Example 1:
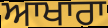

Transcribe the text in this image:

ਆਖਾਰਾ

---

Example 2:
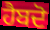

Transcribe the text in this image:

ਹੈਬਦੋ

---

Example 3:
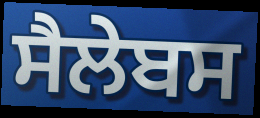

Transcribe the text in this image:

ਸੈਲੇਬਸ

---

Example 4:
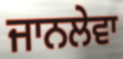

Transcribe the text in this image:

ਜਾਨਲੇਵਾ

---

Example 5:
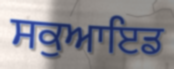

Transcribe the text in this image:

ਸਕੁਆਇਡ